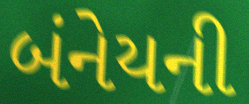
બંનેયની